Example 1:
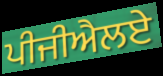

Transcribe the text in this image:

ਪੀਜੀਐਲਏ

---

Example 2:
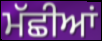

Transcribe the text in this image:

ਮੱਛੀਆਂ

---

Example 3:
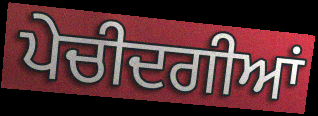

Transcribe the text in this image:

ਪੇਚੀਦਗੀਆਂ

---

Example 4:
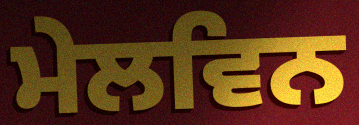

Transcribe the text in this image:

ਮੇਲਵਿਨ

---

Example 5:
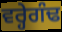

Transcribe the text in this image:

ਵਰ੍ਹੇਗੰਢ